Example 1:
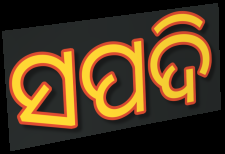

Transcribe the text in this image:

ସପଦି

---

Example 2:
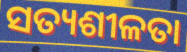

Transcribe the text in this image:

ସତ୍ୟଶୀଳତା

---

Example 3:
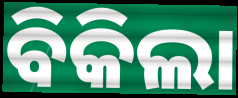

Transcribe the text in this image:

ବିକିଲା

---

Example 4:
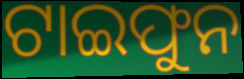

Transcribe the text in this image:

ଟାଇଫୁନ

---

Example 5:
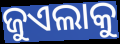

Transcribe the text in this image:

ଜୁଏଲାକୁ